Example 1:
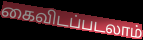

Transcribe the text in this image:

கைவிடப்படலாம்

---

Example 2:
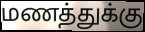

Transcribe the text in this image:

மணத்துக்கு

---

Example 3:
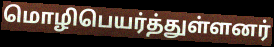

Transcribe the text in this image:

மொழிபெயர்த்துள்ளனர்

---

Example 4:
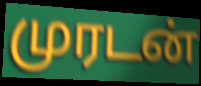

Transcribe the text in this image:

முரடன்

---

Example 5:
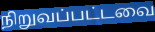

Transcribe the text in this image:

நிறுவப்பட்டவை